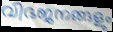
വിഭജനങ്ങളും